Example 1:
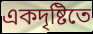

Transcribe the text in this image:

একদৃষ্টিতে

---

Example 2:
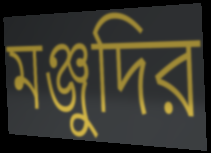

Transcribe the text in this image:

মঞ্জুদির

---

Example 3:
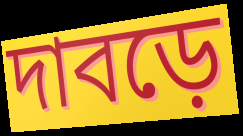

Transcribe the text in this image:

দাবড়ে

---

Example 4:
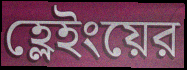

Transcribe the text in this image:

হ্লেইংয়ের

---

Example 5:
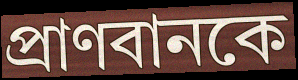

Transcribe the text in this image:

প্রাণবানকে